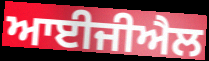
ਆਈਜੀਐਲ